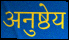
अनुष्ठेय